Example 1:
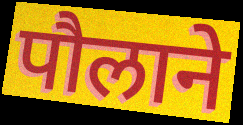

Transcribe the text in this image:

पौलाने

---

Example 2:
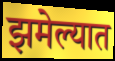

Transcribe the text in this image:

झमेल्यात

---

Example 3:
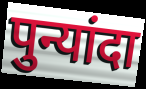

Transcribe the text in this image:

पुन्यांदा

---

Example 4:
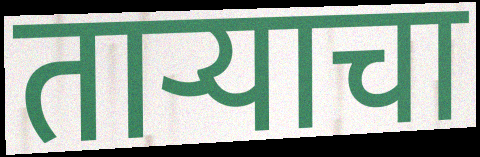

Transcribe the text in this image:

ताऱ्याचा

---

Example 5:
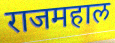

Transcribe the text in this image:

राजमहाल